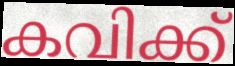
കവിക്ക്